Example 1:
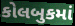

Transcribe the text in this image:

કોલબુકમાં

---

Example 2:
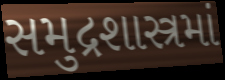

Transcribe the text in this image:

સમુદ્રશાસ્ત્રમાં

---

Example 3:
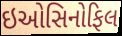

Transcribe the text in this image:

ઇઓસિનોફિલ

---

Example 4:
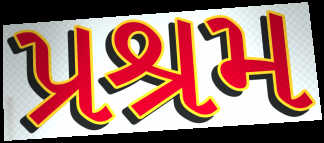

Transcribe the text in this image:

પ્રશ્રમ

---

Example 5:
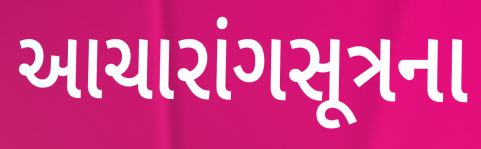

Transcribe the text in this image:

આચારાંગસૂત્રના